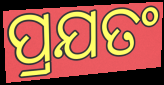
ପ୍ରଯତଂ